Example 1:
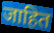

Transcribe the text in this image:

जाहित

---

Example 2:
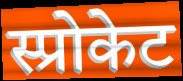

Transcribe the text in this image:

स्प्रोकेट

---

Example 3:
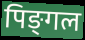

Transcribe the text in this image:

पिङ्गल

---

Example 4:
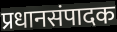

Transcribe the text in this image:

प्रधानसंपादक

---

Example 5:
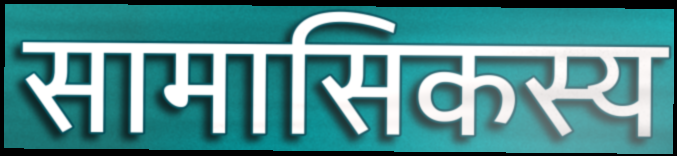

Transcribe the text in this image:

सामासिकस्य